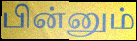
பின்னும்